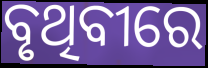
ବୃଥିବୀରେ